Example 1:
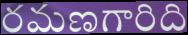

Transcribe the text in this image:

రమణగారిది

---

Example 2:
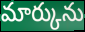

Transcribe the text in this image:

మార్కును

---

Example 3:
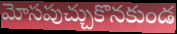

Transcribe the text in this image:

మోసపుచ్చుకొనకుండ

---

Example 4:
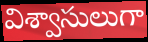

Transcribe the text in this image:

విశ్వాసులుగా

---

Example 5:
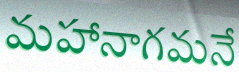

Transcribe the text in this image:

మహానాగమనే